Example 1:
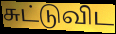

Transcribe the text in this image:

சுட்டுவிட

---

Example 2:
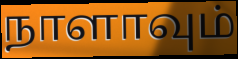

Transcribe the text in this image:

நாளாவும்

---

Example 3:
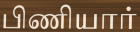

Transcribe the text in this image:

பிணியார்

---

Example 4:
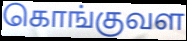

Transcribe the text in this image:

கொங்குவள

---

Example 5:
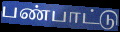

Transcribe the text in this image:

பண்பாட்டு